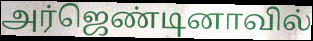
அர்ஜெண்டினாவில்